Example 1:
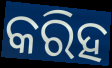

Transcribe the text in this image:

କରିହ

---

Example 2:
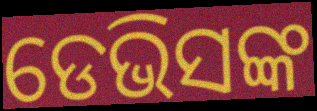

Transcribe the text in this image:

ଡେଭିସଙ୍କ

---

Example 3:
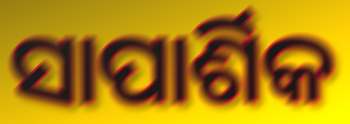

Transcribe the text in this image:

ସାପାର୍ଶିକ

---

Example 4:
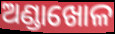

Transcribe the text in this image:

ଅଣ୍ଡାଖୋଳ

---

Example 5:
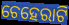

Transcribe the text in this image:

ଚେହେରାଟି